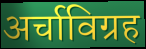
अर्चाविग्रह